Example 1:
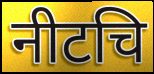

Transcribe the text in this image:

नीटचि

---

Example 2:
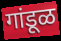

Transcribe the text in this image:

गांडूळ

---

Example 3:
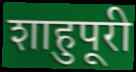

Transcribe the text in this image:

शाहुपूरी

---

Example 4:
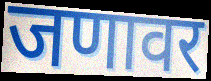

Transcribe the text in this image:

जणावर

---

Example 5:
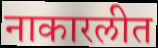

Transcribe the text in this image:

नाकारलीत